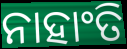
ନାହାଂତି